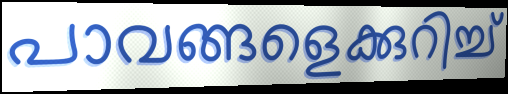
പാവങ്ങളെക്കുറിച്ച്